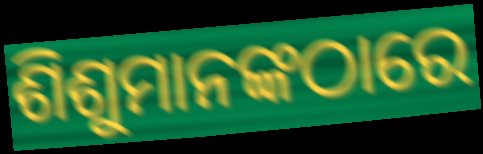
ଶିଶୁମାନଙ୍କଠାରେ